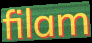
filam